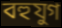
বহুযুগ